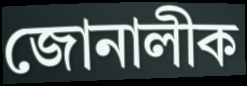
জোনালীক